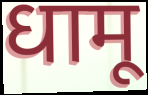
धामू